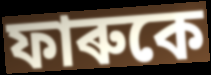
ফাৰুকে